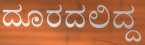
ದೂರದಲಿದ್ದ